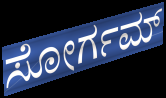
ಸೋರ್ಗಮ್